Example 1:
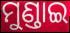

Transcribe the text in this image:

ମୁଣ୍ଡାଇ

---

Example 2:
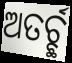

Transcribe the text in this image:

ଅତର୍ଚ୍ଛ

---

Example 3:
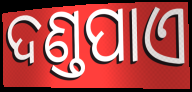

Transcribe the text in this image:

ଦଣ୍ଡପାଏ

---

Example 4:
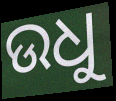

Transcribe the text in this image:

ଉଧୁ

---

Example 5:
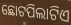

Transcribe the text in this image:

ଛୋଟପିଲାଟିଏ